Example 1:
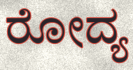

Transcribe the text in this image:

ರೋದ್ಯ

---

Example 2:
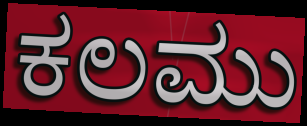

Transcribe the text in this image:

ಕಲಮು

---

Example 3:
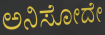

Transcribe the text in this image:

ಅನಿಸೋದೇ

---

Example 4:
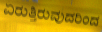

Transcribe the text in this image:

ಏರುತ್ತಿರುವುದರಿಂದ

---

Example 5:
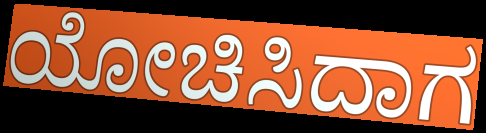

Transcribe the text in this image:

ಯೋಚಿಸಿದಾಗ